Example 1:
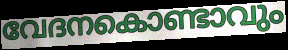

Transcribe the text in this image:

വേദനകൊണ്ടാവും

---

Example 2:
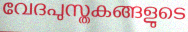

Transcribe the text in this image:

വേദപുസ്തകങ്ങളുടെ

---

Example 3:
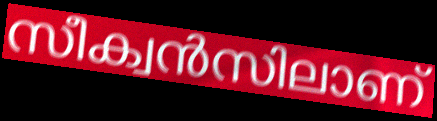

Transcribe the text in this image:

സീക്വൻസിലാണ്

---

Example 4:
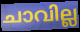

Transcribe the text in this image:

ചാവില്ല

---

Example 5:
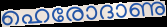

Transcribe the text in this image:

ഹെരോദാണു